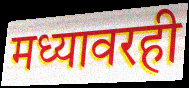
मध्यावरही